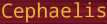
Cephaelis